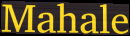
Mahale